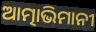
ଆତ୍ମାଭିମାନୀ